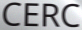
CERC